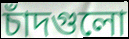
চাঁদগুলো